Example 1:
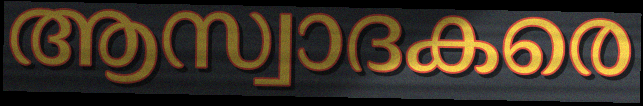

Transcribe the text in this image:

ആസ്വാദകരെ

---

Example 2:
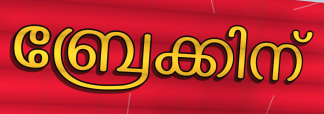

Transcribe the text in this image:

ബ്രേക്കിന്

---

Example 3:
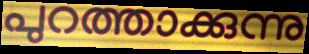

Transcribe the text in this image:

പുറത്താക്കുന്നു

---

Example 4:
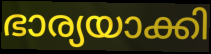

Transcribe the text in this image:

ഭാര്യയാക്കി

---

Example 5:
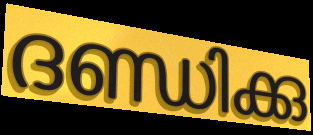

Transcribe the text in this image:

ദണ്ഡിക്കു